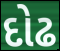
દોઢ